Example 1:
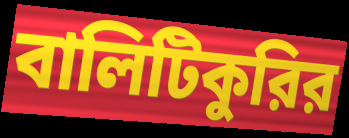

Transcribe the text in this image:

বালিটিকুরির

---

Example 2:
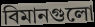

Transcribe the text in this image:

বিমানগুলো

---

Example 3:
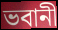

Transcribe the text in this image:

ভবানী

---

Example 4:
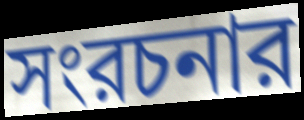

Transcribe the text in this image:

সংরচনার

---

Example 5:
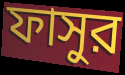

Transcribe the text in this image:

ফাসুর